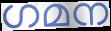
ഗമന